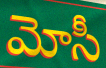
మోసీ